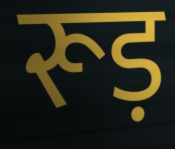
रूड़